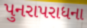
પુનરાપરાધના